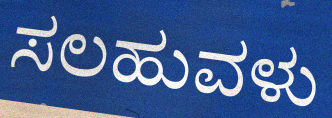
ಸಲಹುವಳು